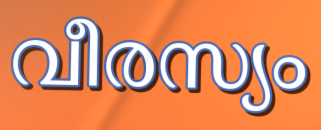
വീരസ്യം